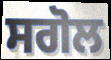
ਸਗੋਲ